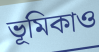
ভূমিকাও